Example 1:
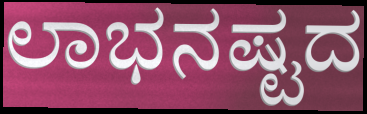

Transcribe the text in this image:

ಲಾಭನಷ್ಟದ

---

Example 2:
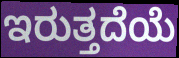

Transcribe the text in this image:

ಇರುತ್ತದೆಯೆ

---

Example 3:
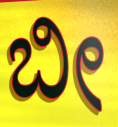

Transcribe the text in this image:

ಬೀ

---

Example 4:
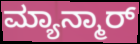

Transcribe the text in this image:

ಮ್ಯಾನ್ಮಾರ್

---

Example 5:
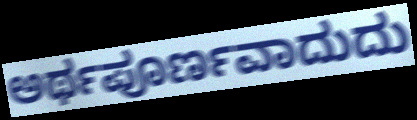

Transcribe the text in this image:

ಅರ್ಥಪೂರ್ಣವಾದುದು